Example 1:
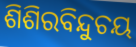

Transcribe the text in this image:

ଶିଶିରବିନ୍ଦୁଚୟ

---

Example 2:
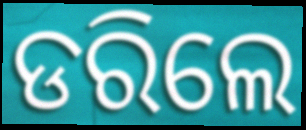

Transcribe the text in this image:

ଡରିଲେ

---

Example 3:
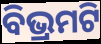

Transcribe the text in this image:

ବିଭ୍ରମଟି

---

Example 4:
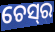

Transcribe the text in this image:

ଚେସ୍‌ର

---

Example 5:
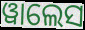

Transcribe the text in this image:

ୱାଲେସ